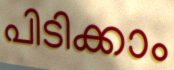
പിടിക്കാം